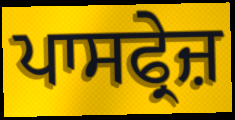
ਪਾਸਫ੍ਰੇਜ਼